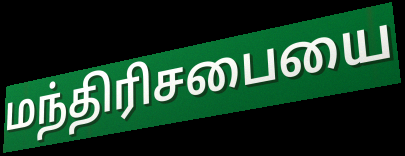
மந்திரிசபையை